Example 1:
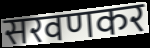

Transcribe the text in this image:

सरवणकर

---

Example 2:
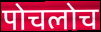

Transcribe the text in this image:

पोचलोच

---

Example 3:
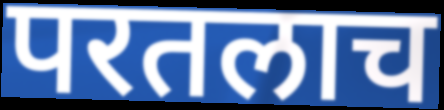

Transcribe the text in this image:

परतलाच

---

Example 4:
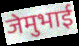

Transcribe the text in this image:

जेमुभाई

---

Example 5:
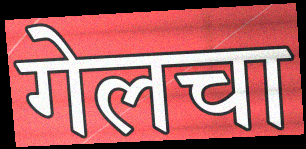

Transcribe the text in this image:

गेलचा